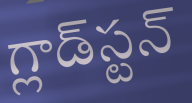
గ్లాడ్‌స్టన్